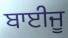
ਬਾਈਜੂ